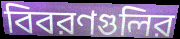
বিবরণগুলির